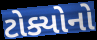
ટોક્યોનો